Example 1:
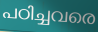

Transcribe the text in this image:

പഠിച്ചവരെ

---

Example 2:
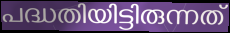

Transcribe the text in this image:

പദ്ധതിയിട്ടിരുന്നത്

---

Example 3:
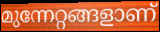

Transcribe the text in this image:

മുന്നേറ്റങ്ങളാണ്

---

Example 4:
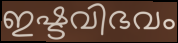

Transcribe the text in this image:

ഇഷ്ടവിഭവം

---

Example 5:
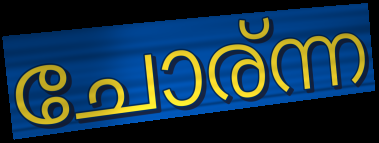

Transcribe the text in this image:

ചോര്ന്ന